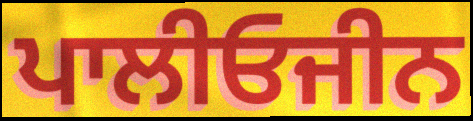
ਪਾਲੀਓਜੀਨ